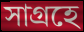
সাগ্রহে